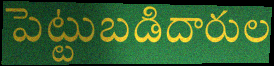
పెట్టుబడిదారుల